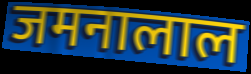
जमनालाल